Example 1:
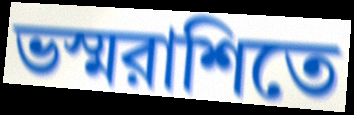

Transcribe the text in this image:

ভস্মরাশিতে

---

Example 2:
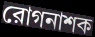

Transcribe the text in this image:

রোগনাশক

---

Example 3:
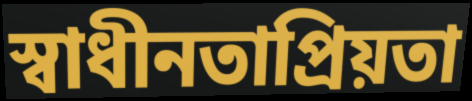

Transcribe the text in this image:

স্বাধীনতাপ্রিয়তা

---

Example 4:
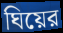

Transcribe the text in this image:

ঘিয়ের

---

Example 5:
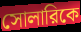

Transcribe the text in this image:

সোলারিকে